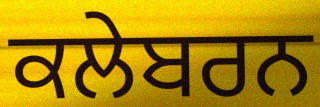
ਕਲੇਬਰਨ